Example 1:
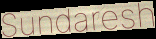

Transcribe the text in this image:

Sundaresh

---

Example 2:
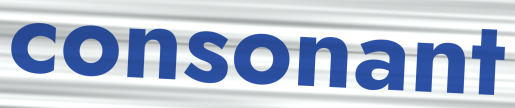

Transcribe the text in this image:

consonant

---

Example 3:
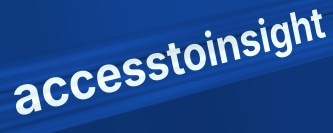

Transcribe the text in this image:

accesstoinsight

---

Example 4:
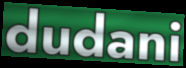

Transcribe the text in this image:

dudani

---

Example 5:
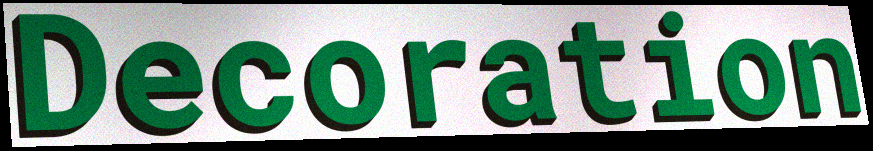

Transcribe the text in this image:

Decoration